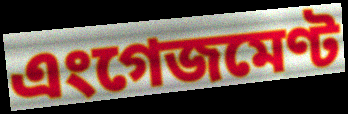
এংগেজমেণ্ট